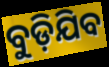
ବୁଡ଼ିଯିବ